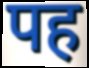
पह